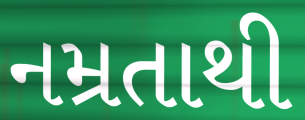
નમ્રતાથી